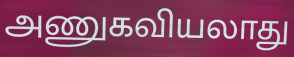
அணுகவியலாது